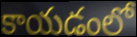
కాయడంలో